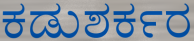
ಕಡುಶರ್ಕರ